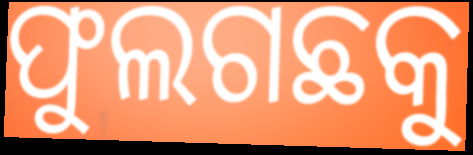
ଫୁଲଗଛକୁ